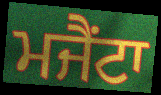
ਮਜੈਂਟਾ